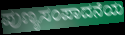
ಪುಣ್ಯಸಂಪಾದನೆಯ